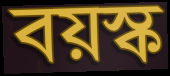
বয়স্ক